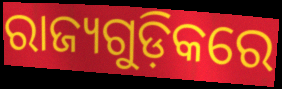
ରାଜ୍ୟଗୁଡ଼ିକରେ